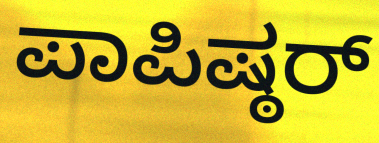
ಪಾಪಿಷ್ಠರ್